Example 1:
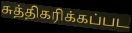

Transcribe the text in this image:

சுத்திகரிக்கப்பட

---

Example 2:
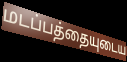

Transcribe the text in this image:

மடப்பத்தையுடைய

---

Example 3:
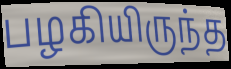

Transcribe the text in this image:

பழகியிருந்த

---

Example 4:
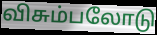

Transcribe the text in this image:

விசும்பலோடு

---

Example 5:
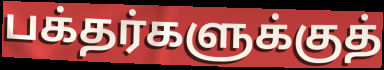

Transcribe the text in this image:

பக்தர்களுக்குத்